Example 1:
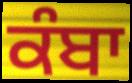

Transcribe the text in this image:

ਕੰਬਾ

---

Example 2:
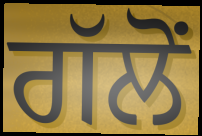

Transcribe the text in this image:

ਗੱਲੋਂ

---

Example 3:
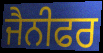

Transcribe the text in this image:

ਜੈਨੀਫਰ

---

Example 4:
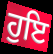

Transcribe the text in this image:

ਹੁਇ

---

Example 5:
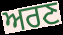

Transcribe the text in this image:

ਅਰਣ